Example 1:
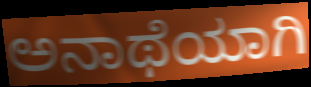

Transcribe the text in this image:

ಅನಾಥೆಯಾಗಿ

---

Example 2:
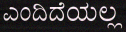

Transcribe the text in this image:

ಎಂದಿದೆಯಲ್ಲ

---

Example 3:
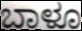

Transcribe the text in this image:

ಬಾಳೂ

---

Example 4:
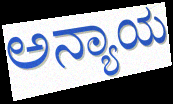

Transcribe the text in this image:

ಅನ್ಯಾಯ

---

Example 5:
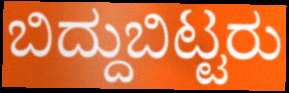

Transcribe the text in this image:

ಬಿದ್ದುಬಿಟ್ಟರು